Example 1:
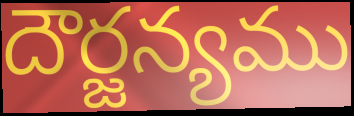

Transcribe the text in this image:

దౌర్జన్యము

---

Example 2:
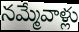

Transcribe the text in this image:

నమ్మేవాళ్లు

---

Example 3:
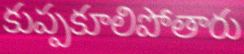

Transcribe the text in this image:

కుప్పకూలిపోతారు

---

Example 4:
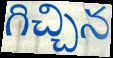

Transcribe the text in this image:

గిచ్చిన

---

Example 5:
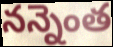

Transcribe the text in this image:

నన్నెంత